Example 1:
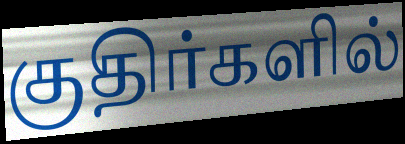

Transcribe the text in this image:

குதிர்களில்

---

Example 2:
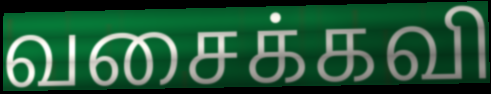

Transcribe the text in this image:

வசைக்கவி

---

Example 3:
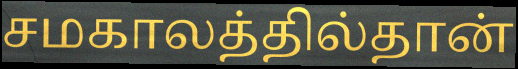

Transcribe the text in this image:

சமகாலத்தில்தான்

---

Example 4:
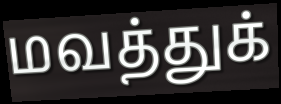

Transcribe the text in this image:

மவத்துக்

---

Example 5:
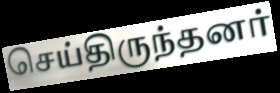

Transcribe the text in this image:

செய்திருந்தனர்